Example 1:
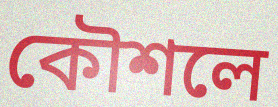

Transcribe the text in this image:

কৌশলে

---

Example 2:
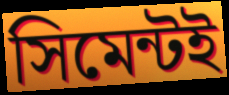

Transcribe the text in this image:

সিমেন্টই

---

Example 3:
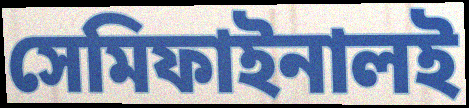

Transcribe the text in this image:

সেমিফাইনালই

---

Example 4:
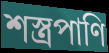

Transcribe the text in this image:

শস্ত্রপাণি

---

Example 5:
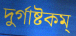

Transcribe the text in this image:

দুর্গাষ্টকম্